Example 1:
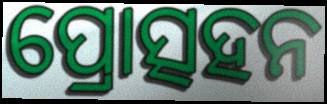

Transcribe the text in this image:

ପ୍ରୋତ୍ସହନ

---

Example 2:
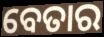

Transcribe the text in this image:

ବେତାର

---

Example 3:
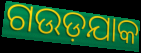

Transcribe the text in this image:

ଗଉଡ଼ଯାକ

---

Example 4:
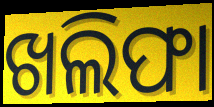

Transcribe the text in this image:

ଖଲିଫା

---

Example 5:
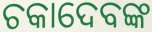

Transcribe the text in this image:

ଚକାଦେବଙ୍କ